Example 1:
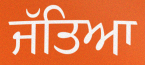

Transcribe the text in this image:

ਜੱਤਿਆ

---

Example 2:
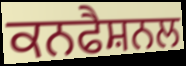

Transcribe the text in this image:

ਕਨਫੈਸ਼ਨਲ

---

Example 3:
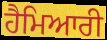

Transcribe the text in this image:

ਹੈਮਿਆਰੀ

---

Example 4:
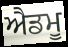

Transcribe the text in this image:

ਐਡਮੂ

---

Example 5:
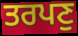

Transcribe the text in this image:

ਤਰਪਣੁ